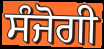
ਸੰਜੋਗੀ